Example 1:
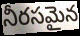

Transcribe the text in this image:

నీరసమైన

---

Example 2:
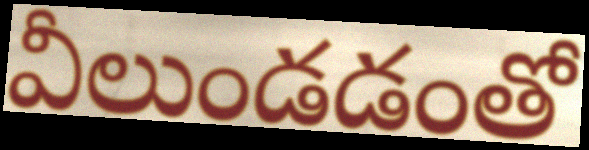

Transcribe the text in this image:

వీలుండడంతో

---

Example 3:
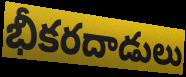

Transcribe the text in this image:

భీకరదాడులు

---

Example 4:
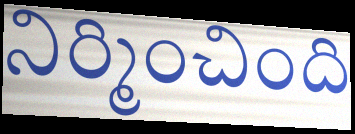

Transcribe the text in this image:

నిర్మించింది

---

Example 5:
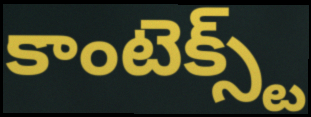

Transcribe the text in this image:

కాంటెక్స్ట్